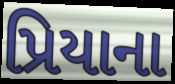
પ્રિયાના